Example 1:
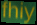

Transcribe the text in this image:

fhiy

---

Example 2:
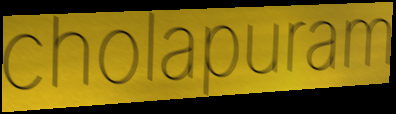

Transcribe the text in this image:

cholapuram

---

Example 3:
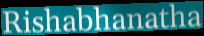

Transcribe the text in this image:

Rishabhanatha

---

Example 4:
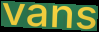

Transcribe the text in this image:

vans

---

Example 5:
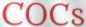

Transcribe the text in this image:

COCs